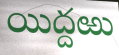
యిద్దఱు